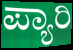
ಪ್ಯಾರಿ